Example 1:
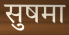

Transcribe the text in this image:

सुषमा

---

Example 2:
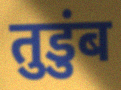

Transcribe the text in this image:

तुडुंब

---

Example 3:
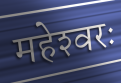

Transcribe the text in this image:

महेश्वरः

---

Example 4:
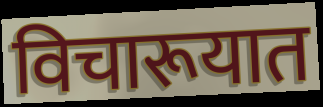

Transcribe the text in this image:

विचारूयात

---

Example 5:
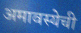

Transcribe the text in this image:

अमावस्येची